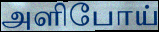
அளிபோய்